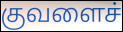
குவளைச்